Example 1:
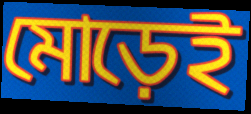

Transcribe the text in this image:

মোড়েই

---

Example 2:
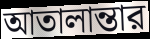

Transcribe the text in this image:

আতালান্তার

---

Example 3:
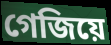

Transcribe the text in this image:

গেজিয়ে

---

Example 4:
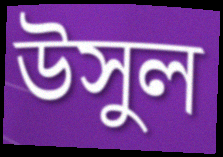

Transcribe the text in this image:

উসুল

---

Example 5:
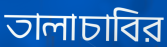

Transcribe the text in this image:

তালাচাবির